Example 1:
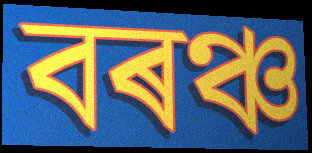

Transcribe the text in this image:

বৰঞ্চ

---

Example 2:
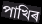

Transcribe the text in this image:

পাখিৰ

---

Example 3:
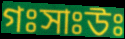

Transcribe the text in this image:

গঃসাঃউঃ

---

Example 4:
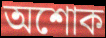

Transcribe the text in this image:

অশোক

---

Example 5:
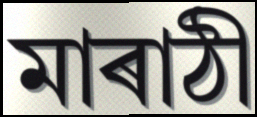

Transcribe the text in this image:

মাৰাঠী